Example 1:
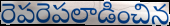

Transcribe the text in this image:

రెపరెపలాడించిన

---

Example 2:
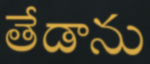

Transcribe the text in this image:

తేడాను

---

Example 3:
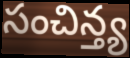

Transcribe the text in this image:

సంచిన్త్య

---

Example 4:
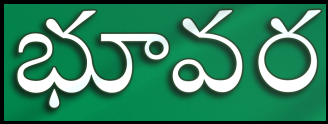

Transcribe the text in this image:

భూవర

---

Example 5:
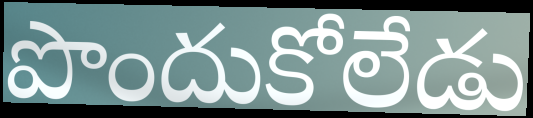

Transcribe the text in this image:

పొందుకోలేడు